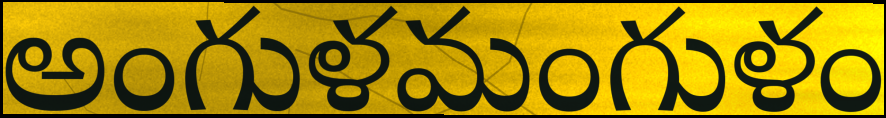
అంగుళమంగుళం